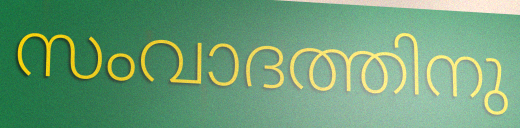
സംവാദത്തിനു